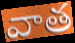
వాత